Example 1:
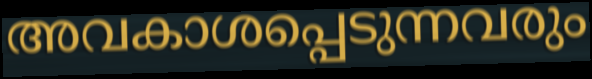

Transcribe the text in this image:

അവകാശപ്പെടുന്നവരും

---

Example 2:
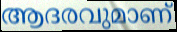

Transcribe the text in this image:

ആദരവുമാണ്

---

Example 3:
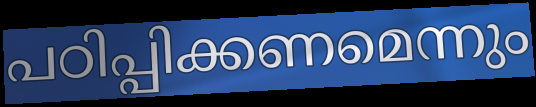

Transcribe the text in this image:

പഠിപ്പിക്കണമെന്നും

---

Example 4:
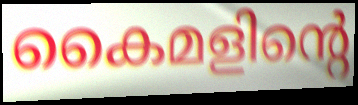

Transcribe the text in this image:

കൈമളിന്റെ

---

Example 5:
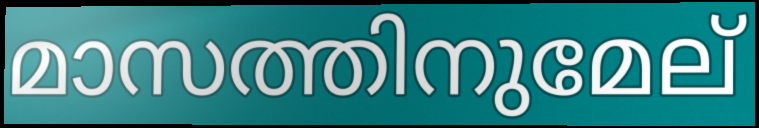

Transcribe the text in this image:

മാസത്തിനുമേല്